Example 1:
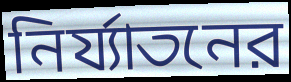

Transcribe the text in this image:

নির্য্যাতনের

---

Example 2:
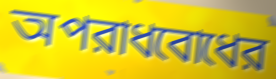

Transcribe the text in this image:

অপরাধবোধের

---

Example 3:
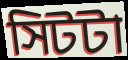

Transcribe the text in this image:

সিটটা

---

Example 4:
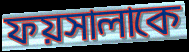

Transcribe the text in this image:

ফয়সালাকে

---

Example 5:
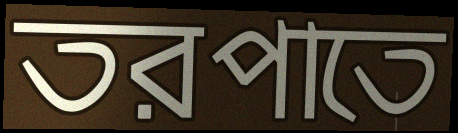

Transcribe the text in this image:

তরপাতে